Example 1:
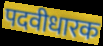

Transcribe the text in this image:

पदवीधारक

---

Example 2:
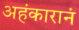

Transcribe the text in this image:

अहंकारानं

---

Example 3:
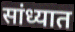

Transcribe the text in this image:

सांध्यात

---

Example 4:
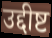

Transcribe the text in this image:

उद्दीष्ट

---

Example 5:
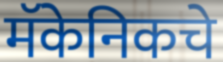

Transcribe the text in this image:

मॅकेनिकचे